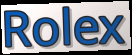
Rolex